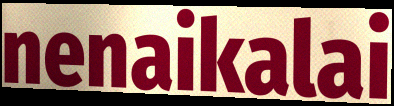
nenaikalai